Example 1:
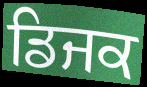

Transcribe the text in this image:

ਡਿਜਕ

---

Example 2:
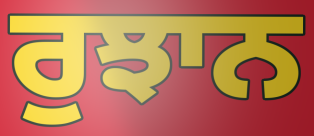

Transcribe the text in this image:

ਰੁਝਾਨ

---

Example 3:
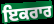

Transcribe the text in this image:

ਇਕਰਾਰ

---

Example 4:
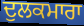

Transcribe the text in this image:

ਦੁਲਕਮਾਰਾ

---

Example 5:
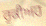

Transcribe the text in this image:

ਰੁਕੀਅਹ